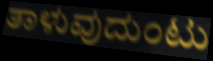
ತಾಳುವುದುಂಟು